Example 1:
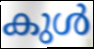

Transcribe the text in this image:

കുൾ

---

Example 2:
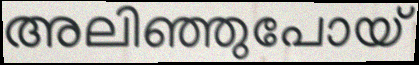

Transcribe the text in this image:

അലിഞ്ഞുപോയ്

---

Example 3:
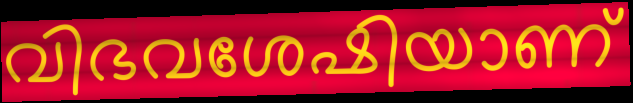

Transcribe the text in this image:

വിഭവശേഷിയാണ്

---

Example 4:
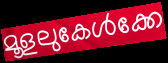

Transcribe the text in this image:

മൂളലുകേൾക്കേ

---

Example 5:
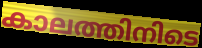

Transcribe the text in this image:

കാലത്തിനിടെ